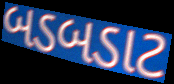
બડબડાટ